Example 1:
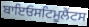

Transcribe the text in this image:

ਬਾਇਓਸਟਿਮੂਲੈਂਟਸ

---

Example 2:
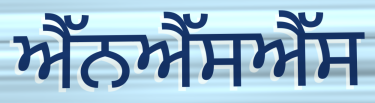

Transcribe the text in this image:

ਐੱਨਐੱਸਐੱਸ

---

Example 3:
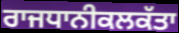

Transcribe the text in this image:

ਰਾਜਧਾਨੀਕਲਕੱਤਾ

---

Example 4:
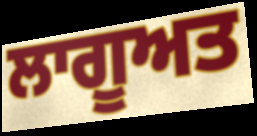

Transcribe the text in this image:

ਲਾਗੂਅਤ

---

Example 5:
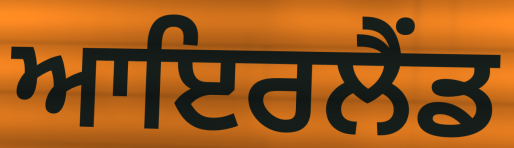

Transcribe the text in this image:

ਆਇਰਲੈਂਡ